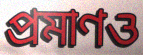
প্রমাণও